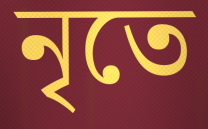
নৃতে